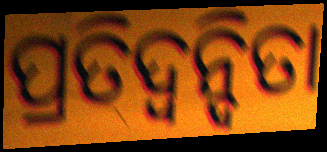
ପ୍ରତିଦ୍ୱନ୍ଦିତା